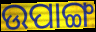
ଉପାଙ୍ଗ